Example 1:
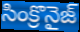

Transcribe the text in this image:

సింక్రొనైజ్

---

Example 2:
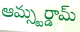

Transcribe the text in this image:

ఆమ్స్టర్డామ్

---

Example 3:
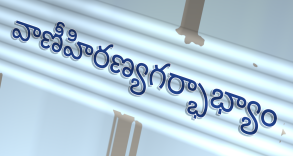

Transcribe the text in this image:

వాణీహిరణ్యగర్భాభ్యాం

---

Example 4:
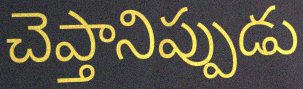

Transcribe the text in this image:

చెప్తానిప్పుడు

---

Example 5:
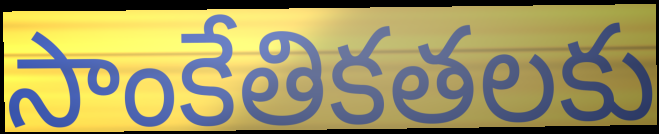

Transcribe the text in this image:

సాంకేతికతలకు